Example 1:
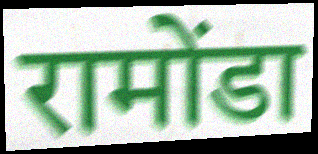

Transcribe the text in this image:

रामोंडा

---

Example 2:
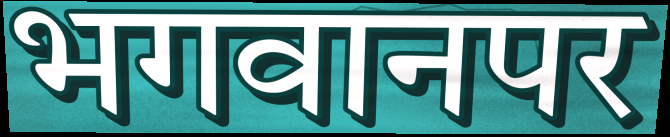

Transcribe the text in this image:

भगवानपर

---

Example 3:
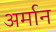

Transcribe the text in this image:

अर्मान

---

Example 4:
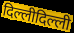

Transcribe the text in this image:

दिल्लीदिल्ली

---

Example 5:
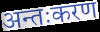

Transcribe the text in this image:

अन्तःकरण